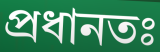
প্ৰধানতঃ